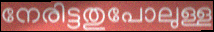
നേരിട്ടതുപോലുള്ള